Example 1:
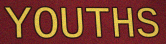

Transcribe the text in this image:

YOUTHS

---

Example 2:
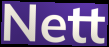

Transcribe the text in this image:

Nett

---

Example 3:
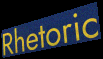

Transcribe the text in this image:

Rhetoric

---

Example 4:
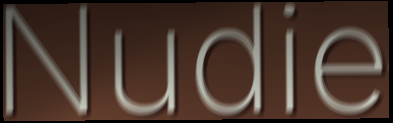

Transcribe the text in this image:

Nudie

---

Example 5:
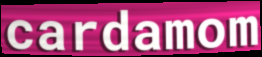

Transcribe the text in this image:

cardamom